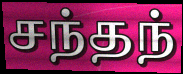
சந்தந்